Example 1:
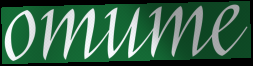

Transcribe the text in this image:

omume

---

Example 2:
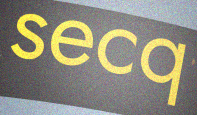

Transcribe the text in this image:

secq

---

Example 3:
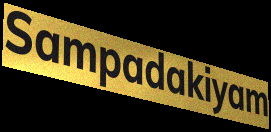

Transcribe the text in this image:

Sampadakiyam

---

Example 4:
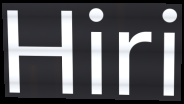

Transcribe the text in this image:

Hiri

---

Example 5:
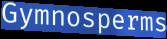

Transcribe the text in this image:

Gymnosperms